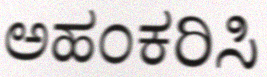
ಅಹಂಕರಿಸಿ